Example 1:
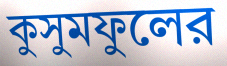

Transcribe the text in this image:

কুসুমফুলের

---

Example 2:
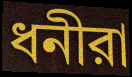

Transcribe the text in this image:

ধনীরা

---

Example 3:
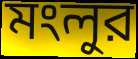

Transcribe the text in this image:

মংলুর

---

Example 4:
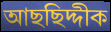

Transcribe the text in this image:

আছছিদ্দীক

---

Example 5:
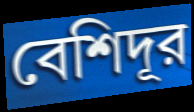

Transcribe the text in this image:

বেশিদূর